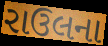
રાઉલના